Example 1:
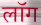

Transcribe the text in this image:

लॉग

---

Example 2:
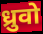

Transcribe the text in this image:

ध्रुवो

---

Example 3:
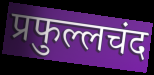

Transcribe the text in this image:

प्रफुल्लचंद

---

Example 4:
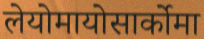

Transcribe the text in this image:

लेयोमायोसार्कोमा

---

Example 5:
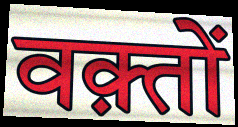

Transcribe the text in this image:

वक़्तों